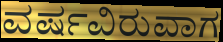
ವರ್ಷವಿರುವಾಗ